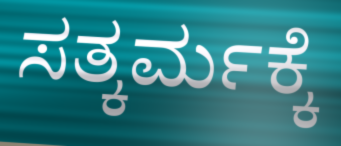
ಸತ್ಕರ್ಮಕ್ಕೆ